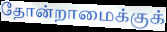
தோன்றாமைக்குக்